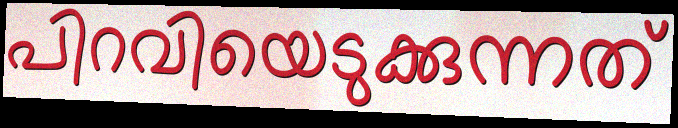
പിറവിയെടുക്കുന്നത്